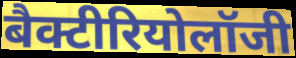
बैक्टीरियोलॉजी